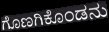
ಗೊಣಗಿಕೊಂಡನು